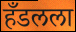
हँडलला